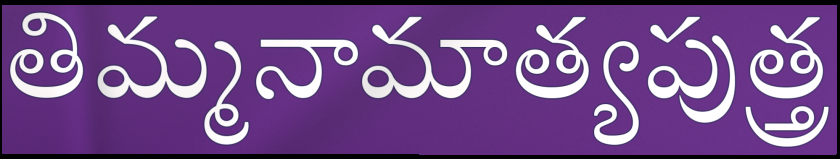
తిమ్మనామాత్యపుత్త్ర